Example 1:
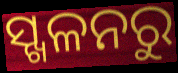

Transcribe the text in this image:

ସ୍ଖଳନରୁ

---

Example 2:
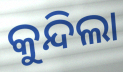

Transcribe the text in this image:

କୁନ୍ଦିଲା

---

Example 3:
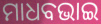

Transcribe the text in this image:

ମାଧବଭାଇ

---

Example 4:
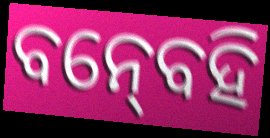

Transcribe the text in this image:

ବନ୍‍ବେହି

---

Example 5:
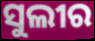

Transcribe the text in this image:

ସୁଲୀର